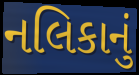
નલિકાનું